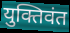
युक्तिवंत